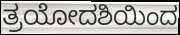
ತ್ರಯೋದಶಿಯಿಂದ